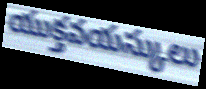
యుక్తవయస్కులు